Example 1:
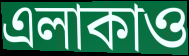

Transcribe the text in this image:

এলাকাও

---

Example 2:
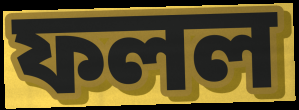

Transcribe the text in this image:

ফলল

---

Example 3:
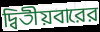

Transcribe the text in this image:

দ্বিতীয়বারের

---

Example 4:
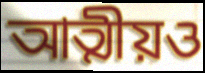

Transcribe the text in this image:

আত্মীয়ও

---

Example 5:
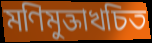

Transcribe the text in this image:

মণিমুক্তাখচিত